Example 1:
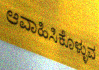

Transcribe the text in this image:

ಆವಾಹಿಸಿಕೊಳ್ಳುವ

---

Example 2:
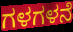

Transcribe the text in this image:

ಗಳಗಳನೆ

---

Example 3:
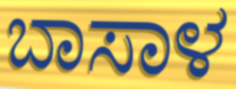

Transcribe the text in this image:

ಬಾಸಾಳ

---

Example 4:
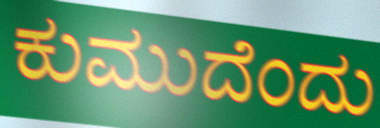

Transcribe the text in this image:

ಕುಮುದೆಂದು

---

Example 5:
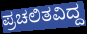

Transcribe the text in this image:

ಪ್ರಚಲಿತವಿದ್ದ